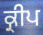
ਕ੍ਰੀਪ